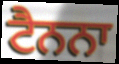
ਟੈਨਨਾ